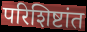
परिशिष्टांत